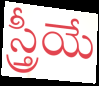
స్త్రీయే